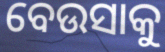
ବେଉସାକୁ